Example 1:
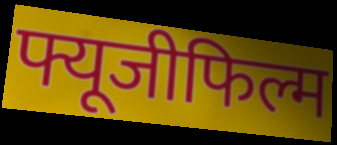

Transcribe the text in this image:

फ्यूजीफिल्म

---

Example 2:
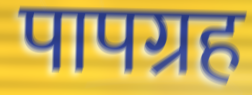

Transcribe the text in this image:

पापग्रह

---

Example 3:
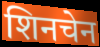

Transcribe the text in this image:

शिनचेन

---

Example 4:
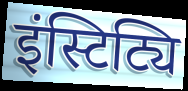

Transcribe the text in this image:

इंस्टिट्यि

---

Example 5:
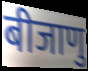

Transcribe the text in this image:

बीजाणु